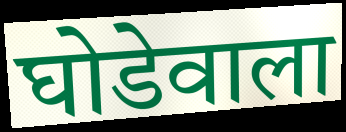
घोडेवाला